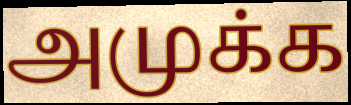
அமுக்க